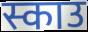
स्काउ